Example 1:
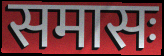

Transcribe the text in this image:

समासः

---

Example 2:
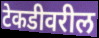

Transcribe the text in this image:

टेकडीवरील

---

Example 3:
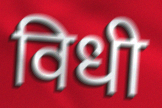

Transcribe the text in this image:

विधी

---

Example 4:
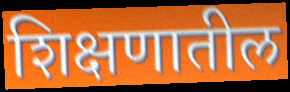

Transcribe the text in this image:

शिक्षणातील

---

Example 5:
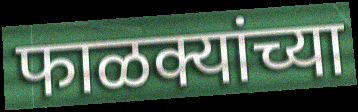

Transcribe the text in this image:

फाळक्यांच्या